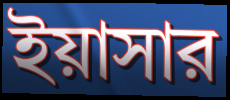
ইয়াসার